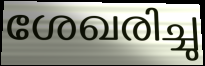
ശേഖരിച്ചു